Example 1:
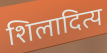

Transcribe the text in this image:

शिलादित्य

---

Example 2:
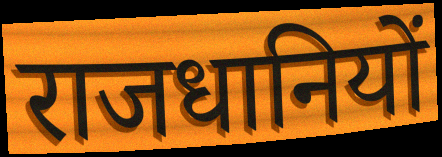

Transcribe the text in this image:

राजधानियों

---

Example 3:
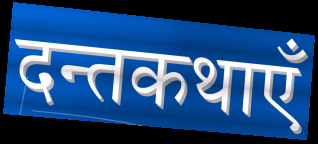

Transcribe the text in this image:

दन्तकथाएँ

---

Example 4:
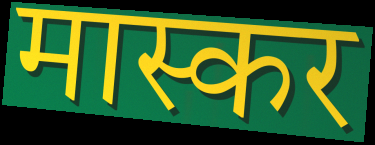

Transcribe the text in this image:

मास्कर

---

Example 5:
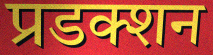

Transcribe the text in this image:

प्रडक्शन